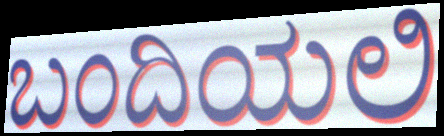
ಬಂದಿಯಲಿ